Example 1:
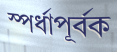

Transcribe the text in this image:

স্পর্ধাপূর্বক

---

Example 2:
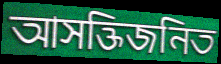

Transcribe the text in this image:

আসক্তিজনিত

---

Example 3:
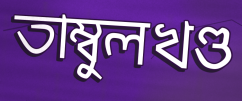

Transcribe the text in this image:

তাম্বুলখণ্ড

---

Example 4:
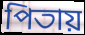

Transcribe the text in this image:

পিতায়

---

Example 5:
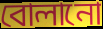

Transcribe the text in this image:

বোলানো